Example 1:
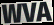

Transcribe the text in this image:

WVA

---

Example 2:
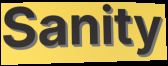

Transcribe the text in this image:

Sanity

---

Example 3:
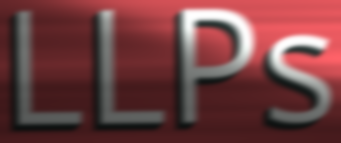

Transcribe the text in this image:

LLPs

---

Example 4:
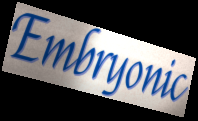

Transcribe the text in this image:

Embryonic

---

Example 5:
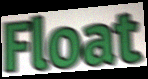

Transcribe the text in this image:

Float